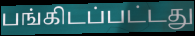
பங்கிடப்பட்டது